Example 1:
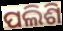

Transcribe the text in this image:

ପଲିଶି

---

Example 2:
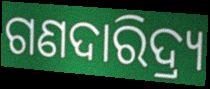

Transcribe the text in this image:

ଗଣଦାରିଦ୍ର୍ୟ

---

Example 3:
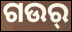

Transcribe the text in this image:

ଗଉର୍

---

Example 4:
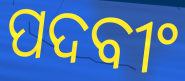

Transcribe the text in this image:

ପଦବୀଂ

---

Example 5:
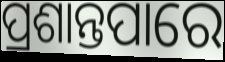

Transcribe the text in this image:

ପ୍ରଶାନ୍ତପାରେ